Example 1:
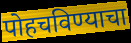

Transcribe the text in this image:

पोहचविण्याचा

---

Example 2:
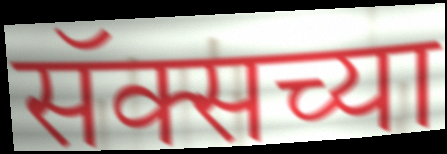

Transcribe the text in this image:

सॅक्सच्या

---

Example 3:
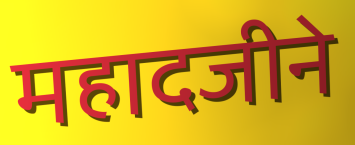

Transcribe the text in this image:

महादजीने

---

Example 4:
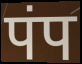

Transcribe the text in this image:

पंप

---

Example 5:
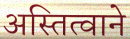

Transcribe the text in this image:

अस्तित्वाने